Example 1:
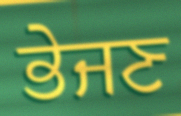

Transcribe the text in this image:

ਭੇਜਣ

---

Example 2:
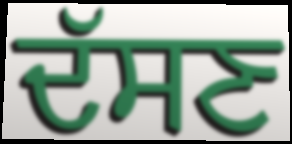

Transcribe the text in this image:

ਦੱਸਣ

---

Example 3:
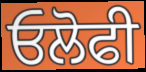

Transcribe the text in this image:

ਓਲੋਫੀ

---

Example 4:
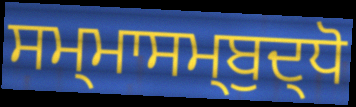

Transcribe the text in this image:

ਸਮ੍ਮਾਸਮ੍ਬੁਦ੍ਧੋ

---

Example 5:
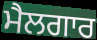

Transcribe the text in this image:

ਮੈਲਗਾਰ